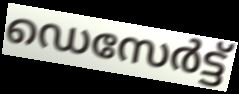
ഡെസേർട്ട്